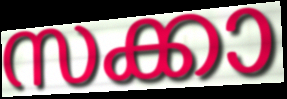
സക്കാ